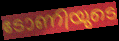
ടോണിയുടെ